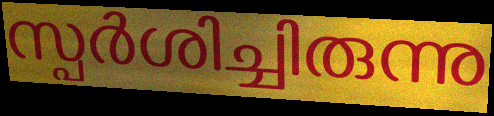
സ്പർശിച്ചിരുന്നു